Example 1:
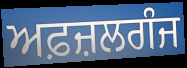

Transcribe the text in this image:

ਅਫ਼ਜ਼ਲਗੰਜ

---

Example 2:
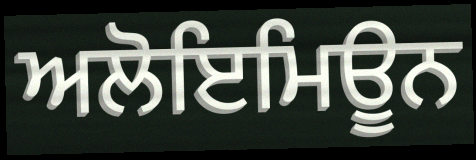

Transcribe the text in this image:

ਅਲੋਇਮਿਊਨ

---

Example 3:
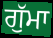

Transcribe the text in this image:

ਗੁੱਮਾ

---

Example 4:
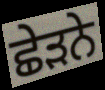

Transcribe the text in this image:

ਛੇੜਨੇ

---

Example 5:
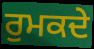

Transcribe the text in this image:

ਰੁਮਕਦੇ